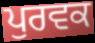
ਪੁਰਵਕ